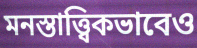
মনস্তাত্ত্বিকভাবেও